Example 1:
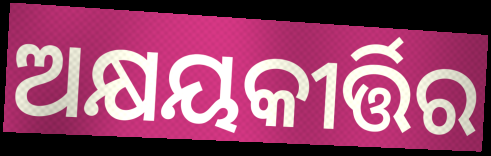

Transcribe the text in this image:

ଅକ୍ଷୟକୀର୍ତ୍ତିର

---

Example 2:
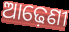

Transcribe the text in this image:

ଆଢ଼େଣୀ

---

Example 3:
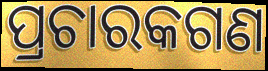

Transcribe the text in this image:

ପ୍ରଚାରକଗଣ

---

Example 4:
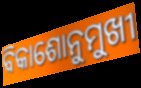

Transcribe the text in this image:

ବିକାଶୋନୁମୁଖୀ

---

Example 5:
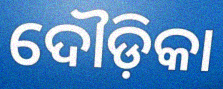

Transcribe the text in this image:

ଦୌଡ଼ିକା